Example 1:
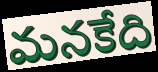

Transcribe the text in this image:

మనకేది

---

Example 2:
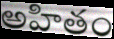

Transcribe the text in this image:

అహితం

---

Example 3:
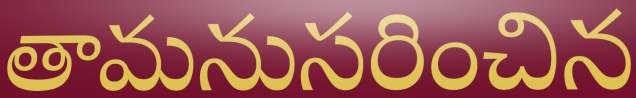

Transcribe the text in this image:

తామనుసరించిన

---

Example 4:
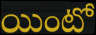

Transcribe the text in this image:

యింటో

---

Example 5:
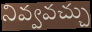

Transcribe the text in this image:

నివ్వవచ్చు